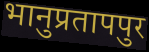
भानुप्रतापपुर